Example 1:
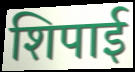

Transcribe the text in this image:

शिपाई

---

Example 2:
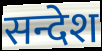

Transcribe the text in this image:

सन्देश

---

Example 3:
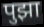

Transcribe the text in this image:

पुझा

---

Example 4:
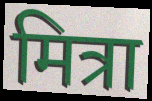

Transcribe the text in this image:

मित्रा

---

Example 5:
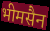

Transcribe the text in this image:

भीमसैन